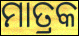
ମାତ୍ରକ